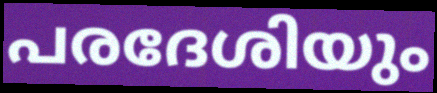
പരദേശിയും